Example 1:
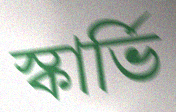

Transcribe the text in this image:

স্কার্ভি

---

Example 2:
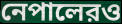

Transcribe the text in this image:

নেপালেরও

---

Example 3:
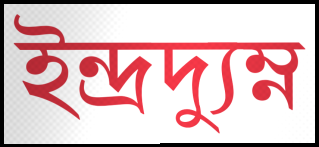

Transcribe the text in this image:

ইন্দ্রদ্যুম্ন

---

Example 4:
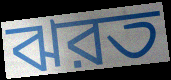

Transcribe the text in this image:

ঝরত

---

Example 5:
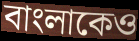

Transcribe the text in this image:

বাংলাকেও